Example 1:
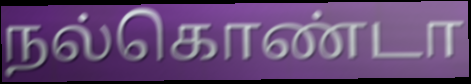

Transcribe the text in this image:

நல்கொண்டா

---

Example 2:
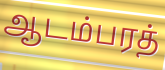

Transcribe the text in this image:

ஆடம்பரத்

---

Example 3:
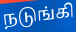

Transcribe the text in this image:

நடுங்கி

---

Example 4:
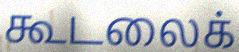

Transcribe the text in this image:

கூடலைக்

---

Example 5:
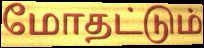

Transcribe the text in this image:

மோதட்டும்